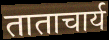
ताताचार्य